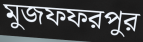
মুজফফরপুর